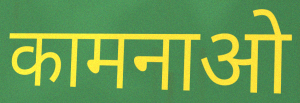
कामनाओ